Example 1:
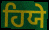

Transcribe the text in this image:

ਹਿਯੇ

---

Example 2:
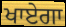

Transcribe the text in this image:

ਖਾਏਗਾ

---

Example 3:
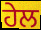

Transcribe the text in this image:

ਹੇਲ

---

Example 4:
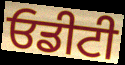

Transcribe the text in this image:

ਓਡੀਟੀ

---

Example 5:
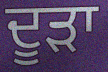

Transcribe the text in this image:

ਦੂੜਾ